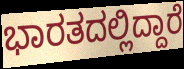
ಭಾರತದಲ್ಲಿದ್ದಾರೆ